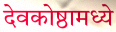
देवकोष्ठामध्ये